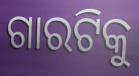
ଗାରଟିକୁ